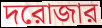
দরোজার